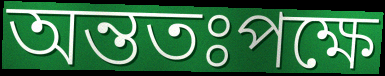
অন্ততঃপক্ষে